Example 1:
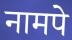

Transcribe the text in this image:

नामपे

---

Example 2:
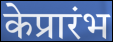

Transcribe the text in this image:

केप्रारंभ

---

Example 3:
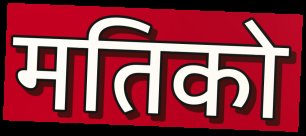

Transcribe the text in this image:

मतिको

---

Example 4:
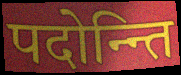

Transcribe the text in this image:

पदोन्न्ति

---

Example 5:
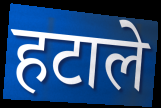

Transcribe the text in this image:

हटाले